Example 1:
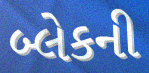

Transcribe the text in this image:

બ્લેકની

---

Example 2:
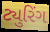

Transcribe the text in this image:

ટ્યુરિંગ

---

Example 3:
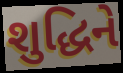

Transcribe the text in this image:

શુદ્ધિને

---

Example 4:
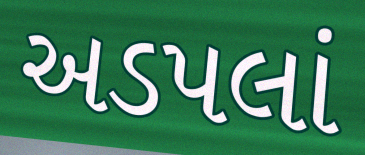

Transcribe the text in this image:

અડપલાં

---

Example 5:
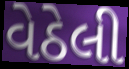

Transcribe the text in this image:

વેઠેલી